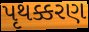
પૃથક્કરણ